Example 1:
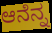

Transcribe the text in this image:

ಆನೆನ್ನ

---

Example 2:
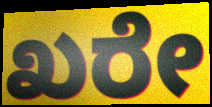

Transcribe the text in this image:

ಖರೇ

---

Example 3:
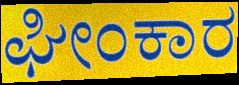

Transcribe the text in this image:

ಘೀಂಕಾರ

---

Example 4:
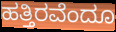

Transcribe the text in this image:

ಹತ್ತಿರವೆಂದೂ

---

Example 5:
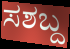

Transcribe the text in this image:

ಸಶಬ್ದ